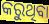
କରୁଥିବା